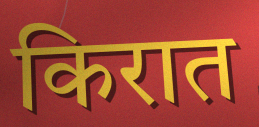
किरात